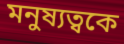
মনুষ্যত্বকে